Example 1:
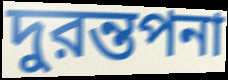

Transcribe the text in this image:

দুরন্তপনা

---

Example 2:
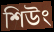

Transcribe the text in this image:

শিউং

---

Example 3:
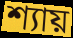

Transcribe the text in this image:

শ্যায়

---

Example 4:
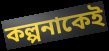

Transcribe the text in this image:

কল্পনাকেই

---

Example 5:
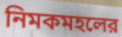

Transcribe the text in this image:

নিমকমহলের